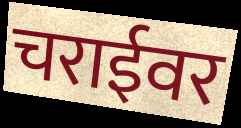
चराईवर